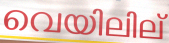
വെയിലില്